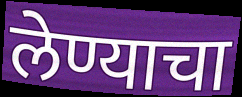
लेण्याचा